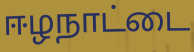
ஈழநாட்டை